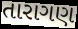
તારાગણ